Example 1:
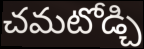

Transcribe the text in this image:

చమటోడ్చి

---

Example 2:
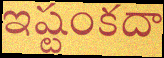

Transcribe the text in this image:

ఇష్టంకదా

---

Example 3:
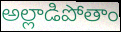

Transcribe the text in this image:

అల్లాడిపోతాం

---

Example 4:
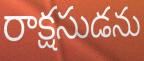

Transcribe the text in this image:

రాక్షసుడను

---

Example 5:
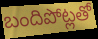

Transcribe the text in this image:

బందిపోట్లతో